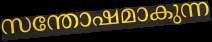
സന്തോഷമാകുന്ന